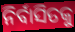
ନିର୍ବାସିତକୁ